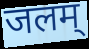
जलम्